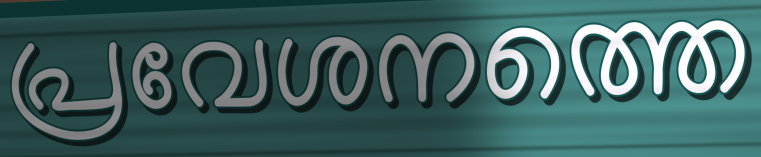
പ്രവേശനത്തെ